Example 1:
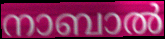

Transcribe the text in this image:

നാബാൽ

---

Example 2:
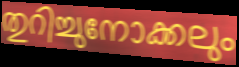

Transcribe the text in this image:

തുറിച്ചുനോക്കലും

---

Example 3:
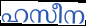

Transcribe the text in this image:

ഹസീന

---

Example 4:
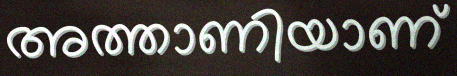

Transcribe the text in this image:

അത്താണിയാണ്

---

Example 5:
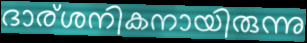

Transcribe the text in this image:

ദാര്ശനികനായിരുന്നു